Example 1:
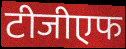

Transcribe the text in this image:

टीजीएफ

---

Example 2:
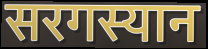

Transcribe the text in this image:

सरगस्यान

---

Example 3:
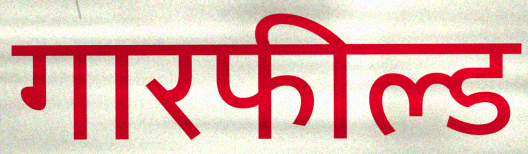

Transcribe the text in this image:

गारफील्ड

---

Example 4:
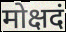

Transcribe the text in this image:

मोक्षदं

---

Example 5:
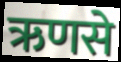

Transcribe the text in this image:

ऋणसे